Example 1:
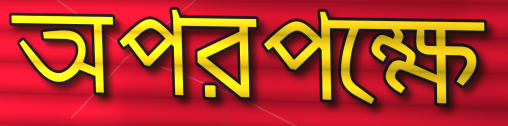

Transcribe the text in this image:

অপরপক্ষে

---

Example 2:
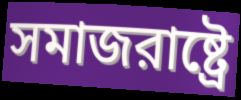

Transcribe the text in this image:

সমাজরাষ্ট্রে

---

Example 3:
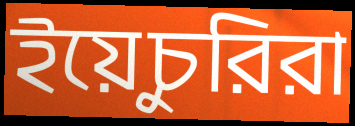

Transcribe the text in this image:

ইয়েচুরিরা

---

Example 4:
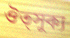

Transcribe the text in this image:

ঔত্সুক্য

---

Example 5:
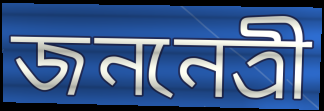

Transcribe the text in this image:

জননেত্রী